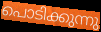
പൊടിക്കുന്നു